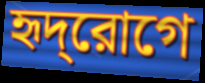
হৃদ্‌রোগে